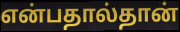
என்பதால்தான்